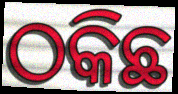
ଠକିଛ